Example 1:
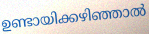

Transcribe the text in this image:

ഉണ്ടായിക്കഴിഞ്ഞാൽ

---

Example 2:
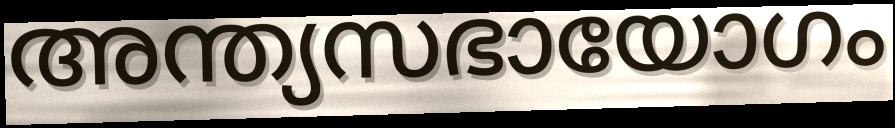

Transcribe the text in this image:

അന്ത്യസഭായോഗം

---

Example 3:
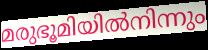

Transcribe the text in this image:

മരുഭൂമിയിൽനിന്നും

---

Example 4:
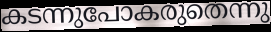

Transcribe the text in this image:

കടന്നുപോകരുതെന്നു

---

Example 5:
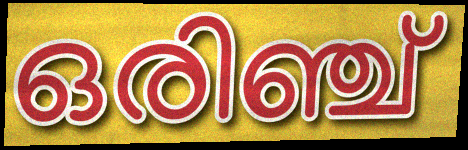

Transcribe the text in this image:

ഒരിഞ്ച്